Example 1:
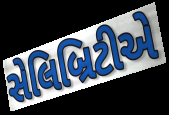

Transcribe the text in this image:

સેલિબ્રિટીએ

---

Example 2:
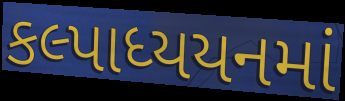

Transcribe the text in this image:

કલ્પાધ્યયનમાં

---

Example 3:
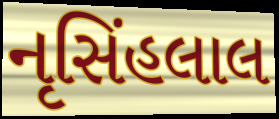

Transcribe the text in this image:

નૃસિંહલાલ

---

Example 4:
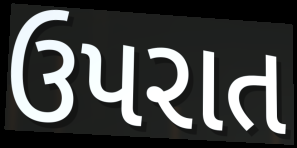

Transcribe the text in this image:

ઉપરાત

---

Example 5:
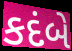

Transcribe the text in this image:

કદંબે